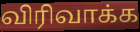
விரிவாக்க